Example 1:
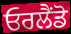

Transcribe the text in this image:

ਓਰਲੈਂਡੋ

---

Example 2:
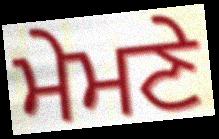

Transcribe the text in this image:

ਮੇਮਣੇ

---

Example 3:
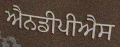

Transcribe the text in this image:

ਐਨਡੀਪੀਐਸ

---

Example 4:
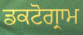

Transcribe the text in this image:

ਡਕਟੋਗ੍ਰਾਮ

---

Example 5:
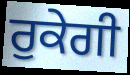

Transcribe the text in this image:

ਰੁਕੇਗੀ